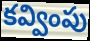
కవ్వింపు